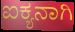
ಐಕ್ಯನಾಗಿ